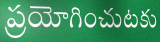
ప్రయోగించుటకు